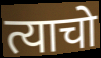
त्याचो